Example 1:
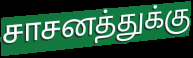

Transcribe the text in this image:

சாசனத்துக்கு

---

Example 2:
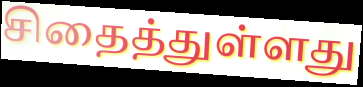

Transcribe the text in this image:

சிதைத்துள்ளது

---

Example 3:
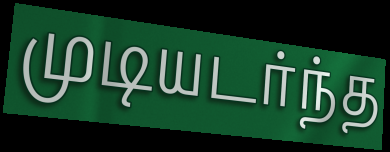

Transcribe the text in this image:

முடியடர்ந்த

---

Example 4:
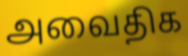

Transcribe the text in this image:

அவைதிக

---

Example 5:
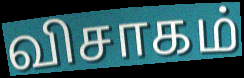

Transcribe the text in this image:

விசாகம்